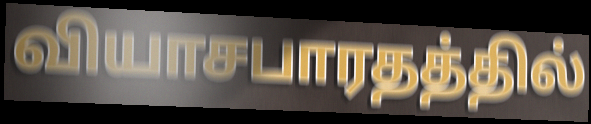
வியாசபாரதத்தில்